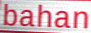
bahan